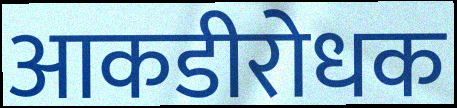
आकडीरोधक